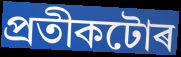
প্ৰতীকটোৰ